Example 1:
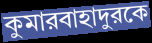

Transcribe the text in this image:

কুমারবাহাদুরকে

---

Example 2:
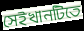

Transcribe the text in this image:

সেইখানটিতে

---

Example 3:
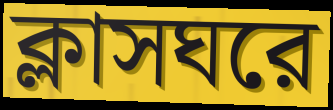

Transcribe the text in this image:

ক্লাসঘরে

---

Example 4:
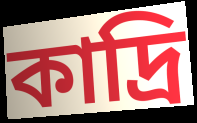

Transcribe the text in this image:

কাদ্রি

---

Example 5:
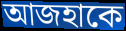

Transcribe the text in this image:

আজহাকে